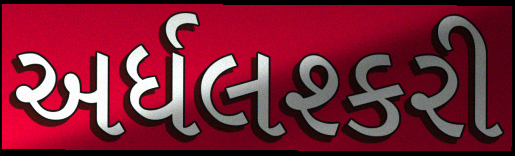
અર્ધલશ્કરી